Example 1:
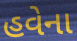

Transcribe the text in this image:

હવેના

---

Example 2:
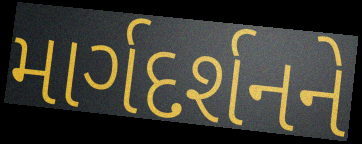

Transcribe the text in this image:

માર્ગદર્શનને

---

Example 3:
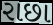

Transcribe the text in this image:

રાછા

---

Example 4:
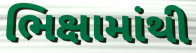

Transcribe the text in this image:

ભિક્ષામાંથી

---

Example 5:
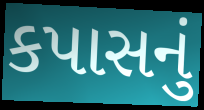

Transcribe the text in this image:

કપાસનું